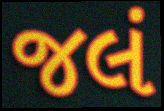
જલં